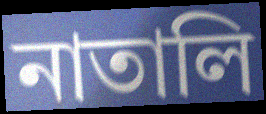
নাতালি